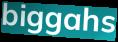
biggahs